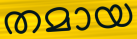
തമായ